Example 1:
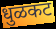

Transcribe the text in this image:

धुळकट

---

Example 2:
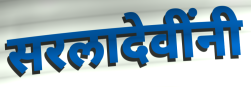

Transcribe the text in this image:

सरलादेवींनी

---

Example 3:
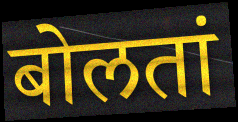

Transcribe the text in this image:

बोलतां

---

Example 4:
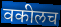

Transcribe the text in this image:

वकीलच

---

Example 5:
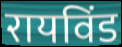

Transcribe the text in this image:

रायविंड